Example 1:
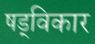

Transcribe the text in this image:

षड्‌विकार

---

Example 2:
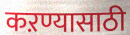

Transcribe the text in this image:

कऱण्यासाठी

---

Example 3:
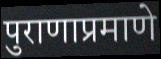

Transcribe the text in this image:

पुराणाप्रमाणे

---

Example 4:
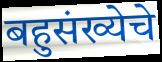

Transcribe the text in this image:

बहुसंख्येचे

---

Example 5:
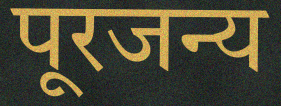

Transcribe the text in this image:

पूरजन्य